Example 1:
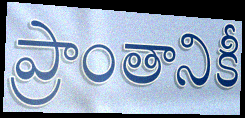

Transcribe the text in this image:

ప్రాంతానికీ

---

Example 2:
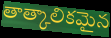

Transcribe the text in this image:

తాత్కాలికమైన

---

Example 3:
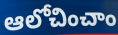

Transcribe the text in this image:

ఆలోచించాం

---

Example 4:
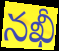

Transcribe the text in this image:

నఖీ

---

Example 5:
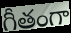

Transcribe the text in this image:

గీతంగా